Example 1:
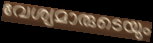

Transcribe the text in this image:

വേശ്യമാരുടെയും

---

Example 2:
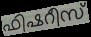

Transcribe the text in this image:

ഫിഷറീസ്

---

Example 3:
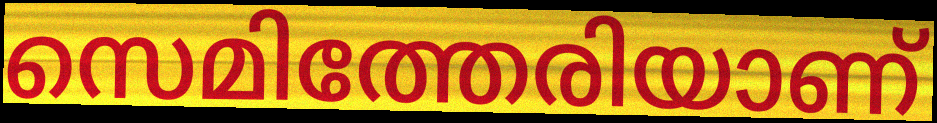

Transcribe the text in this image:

സെമിത്തേരിയാണ്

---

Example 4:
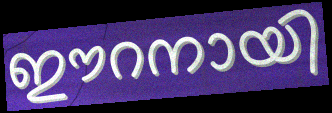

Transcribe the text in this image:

ഈറനായി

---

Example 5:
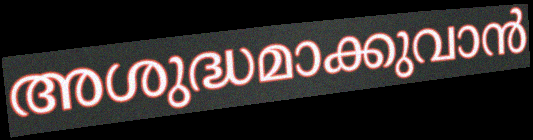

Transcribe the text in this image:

അശുദ്ധമാക്കുവാൻ